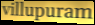
villupuram